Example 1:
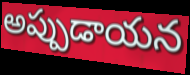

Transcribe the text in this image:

అప్పుడాయన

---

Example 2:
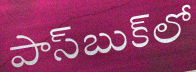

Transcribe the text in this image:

పాస్‌బుక్‌లో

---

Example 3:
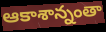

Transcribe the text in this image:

ఆకాశాన్నంతా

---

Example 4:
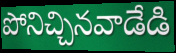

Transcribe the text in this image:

పోనిచ్చినవాడేడి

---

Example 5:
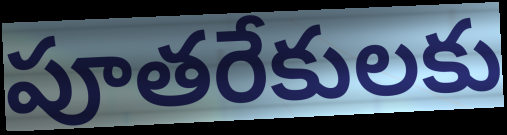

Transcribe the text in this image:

పూతరేకులకు